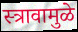
स्त्रावामुळे